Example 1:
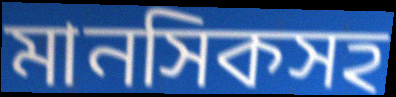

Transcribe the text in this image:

মানসিকসহ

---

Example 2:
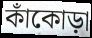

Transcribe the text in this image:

কাঁকোড়া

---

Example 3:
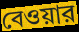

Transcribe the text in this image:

বেওয়ার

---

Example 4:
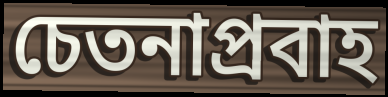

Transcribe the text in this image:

চেতনাপ্রবাহ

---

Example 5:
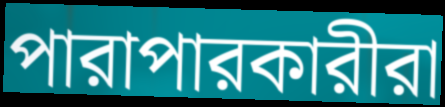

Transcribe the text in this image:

পারাপারকারীরা